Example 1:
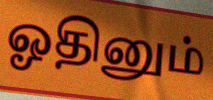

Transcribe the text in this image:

ஓதினும்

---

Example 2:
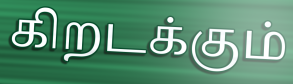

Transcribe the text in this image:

கிறடக்கும்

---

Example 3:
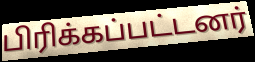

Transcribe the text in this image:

பிரிக்கப்பட்டனர்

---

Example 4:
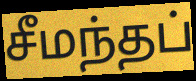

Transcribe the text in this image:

சீமந்தப்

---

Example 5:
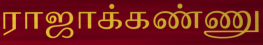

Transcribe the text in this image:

ராஜாக்கண்ணு